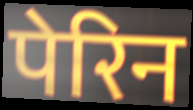
पेरिन